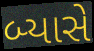
બ્યાસે